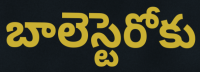
బాలెస్టెరోకు